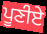
ਪੂਣੀਏ